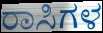
ರಾಸಿಗಳ